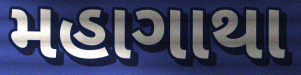
મહાગાથા